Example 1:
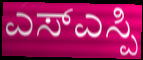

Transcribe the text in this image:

ಎಸ್ಎಸ್ಪಿ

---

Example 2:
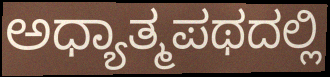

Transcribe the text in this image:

ಅಧ್ಯಾತ್ಮಪಥದಲ್ಲಿ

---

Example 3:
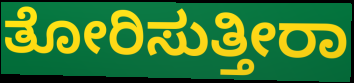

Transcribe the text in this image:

ತೋರಿಸುತ್ತೀರಾ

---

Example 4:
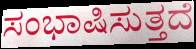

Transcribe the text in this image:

ಸಂಭಾಷಿಸುತ್ತದೆ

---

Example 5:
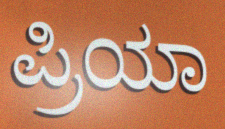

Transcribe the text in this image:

ಪ್ರಿಯಾ